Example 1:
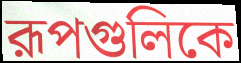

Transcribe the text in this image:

রূপগুলিকে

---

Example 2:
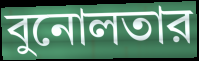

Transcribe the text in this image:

বুনোলতার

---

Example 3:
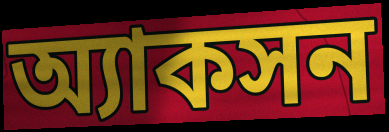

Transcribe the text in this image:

অ্যাকসন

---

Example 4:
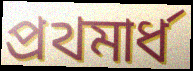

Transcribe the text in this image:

প্রথমার্ধ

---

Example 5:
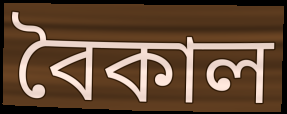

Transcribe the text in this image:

বৈকাল